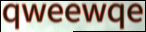
qweewqe